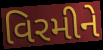
વિરમીને